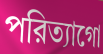
পরিত্যাগো